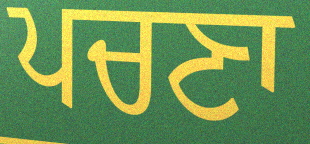
ਪਚਣਾ